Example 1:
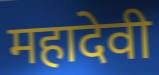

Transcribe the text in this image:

महादेवी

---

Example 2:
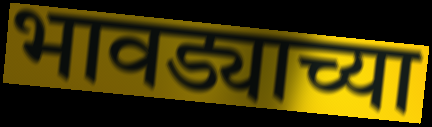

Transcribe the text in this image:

भावड्याच्या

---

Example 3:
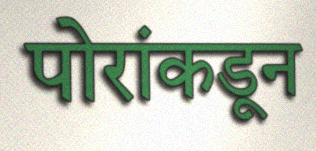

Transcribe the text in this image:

पोरांकडून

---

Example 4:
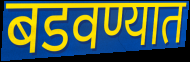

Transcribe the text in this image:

बडवण्यात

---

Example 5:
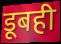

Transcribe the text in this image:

डूबही